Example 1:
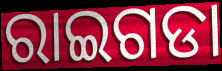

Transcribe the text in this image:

ରାଇଗଡା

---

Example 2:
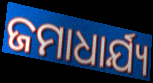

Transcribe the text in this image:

ଜମାଧାର୍ଯ୍ୟ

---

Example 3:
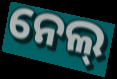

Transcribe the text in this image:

ନେଲ୍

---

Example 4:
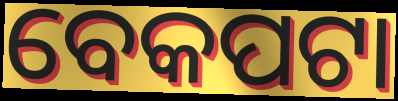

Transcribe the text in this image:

ବେକପଟା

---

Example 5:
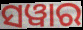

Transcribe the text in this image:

ସୱାର